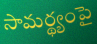
సామర్థ్యంపై